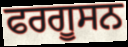
ਫਰਗੂਸਨ